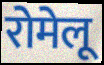
रोमेलू